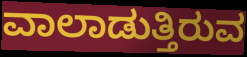
ವಾಲಾಡುತ್ತಿರುವ